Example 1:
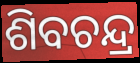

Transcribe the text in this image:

ଶିବଚନ୍ଦ୍ର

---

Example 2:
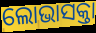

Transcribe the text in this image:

ଲୋଭାସକ୍ତା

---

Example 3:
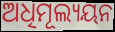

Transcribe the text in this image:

ଅଧିମୂଲ୍ୟୟନ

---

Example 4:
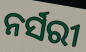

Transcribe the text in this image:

ନର୍ସରୀ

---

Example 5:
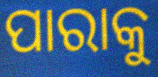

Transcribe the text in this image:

ପାରାକୁ